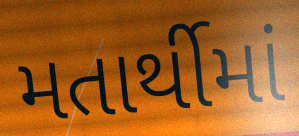
મતાર્થીમાં